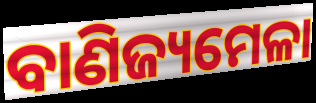
ବାଣିଜ୍ୟମେଳା